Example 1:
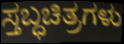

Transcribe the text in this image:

ಸ್ತಬ್ಧಚಿತ್ರಗಳು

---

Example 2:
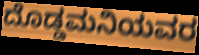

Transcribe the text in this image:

ದೊಡ್ಡಮನಿಯವರ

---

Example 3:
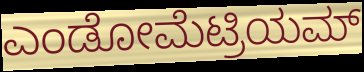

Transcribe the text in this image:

ಎಂಡೋಮೆಟ್ರಿಯಮ್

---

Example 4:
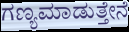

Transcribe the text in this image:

ಗಣ್ಯಮಾಡುತ್ತೇನೆ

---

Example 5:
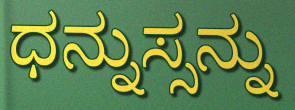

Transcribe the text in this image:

ಧನ್ನುಸ್ಸನ್ನು